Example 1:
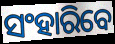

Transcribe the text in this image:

ସଂହାରିବେ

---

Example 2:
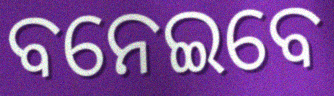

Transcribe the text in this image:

ବନେଇବେ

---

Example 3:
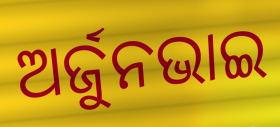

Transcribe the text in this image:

ଅର୍ଜୁନଭାଇ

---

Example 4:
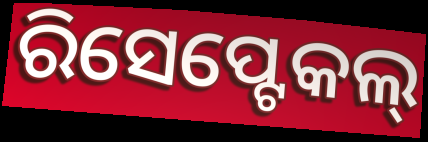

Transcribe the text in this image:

ରିସେପ୍ଟେକଲ୍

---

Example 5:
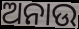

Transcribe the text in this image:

ଅନାଉ